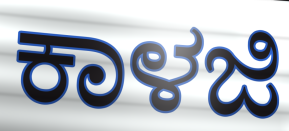
ಕಾಳಜಿ